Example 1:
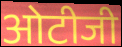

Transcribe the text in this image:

ओटीजी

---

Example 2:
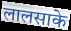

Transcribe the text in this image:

लालसाके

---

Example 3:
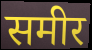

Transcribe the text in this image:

समीर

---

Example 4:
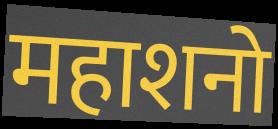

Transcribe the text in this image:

महाशनो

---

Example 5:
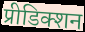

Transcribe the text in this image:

प्रीडिक्शन